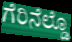
ಗೆರಿನೆಲ್ಡೊ